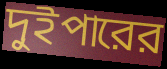
দুইপারের